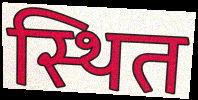
स्थित